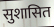
सुशासित